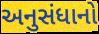
અનુસંધાનો